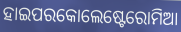
ହାଇପରକୋଲେଷ୍ଟେରୋମିଆ